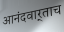
आनंदवार्ताच